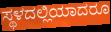
ಸ್ಥಳದಲ್ಲಿಯಾದರೂ